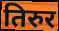
तिरुर